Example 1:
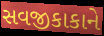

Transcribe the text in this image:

સવજીકાકાને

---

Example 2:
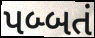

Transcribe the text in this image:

પબ્બતં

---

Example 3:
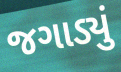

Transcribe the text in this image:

જગાડ્યું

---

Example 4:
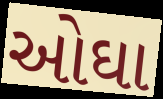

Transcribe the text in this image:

ઓઘા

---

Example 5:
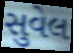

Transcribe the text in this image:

સુવેલ